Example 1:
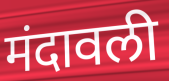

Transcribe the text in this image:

मंदावली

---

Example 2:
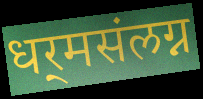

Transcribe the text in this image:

धर्मसंलग्न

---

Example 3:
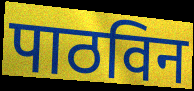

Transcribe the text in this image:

पाठविन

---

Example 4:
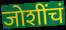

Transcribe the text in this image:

जोशींचं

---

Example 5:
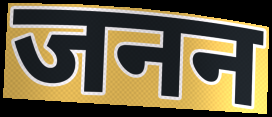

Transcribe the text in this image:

जनन